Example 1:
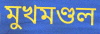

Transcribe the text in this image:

মুখমণ্ডল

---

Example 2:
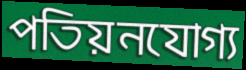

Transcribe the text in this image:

পতিয়নযোগ্য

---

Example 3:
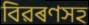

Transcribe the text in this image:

বিৱৰণসহ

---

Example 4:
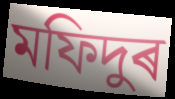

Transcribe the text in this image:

মফিদুৰ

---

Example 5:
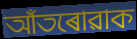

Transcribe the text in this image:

আঁতৰোৱাক